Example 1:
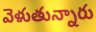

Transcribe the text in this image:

వెళుతున్నారు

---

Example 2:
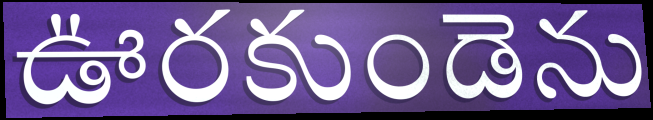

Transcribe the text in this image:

ఊరకుండెను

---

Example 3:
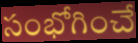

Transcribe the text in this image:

సంభోగించే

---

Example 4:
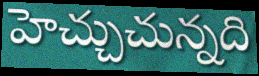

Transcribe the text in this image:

హెచ్చుచున్నది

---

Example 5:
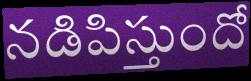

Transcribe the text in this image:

నడిపిస్తుందో